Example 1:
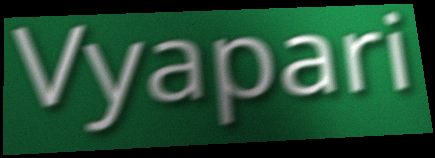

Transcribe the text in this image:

Vyapari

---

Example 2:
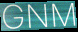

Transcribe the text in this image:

GNM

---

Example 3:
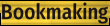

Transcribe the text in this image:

Bookmaking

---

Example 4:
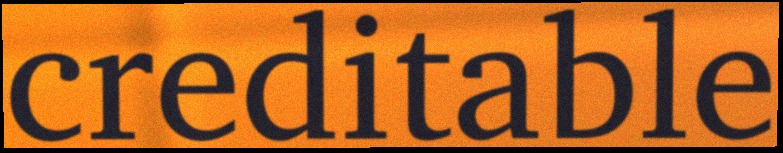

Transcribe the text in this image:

creditable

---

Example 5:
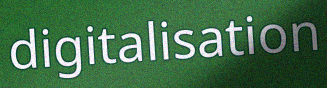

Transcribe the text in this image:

digitalisation